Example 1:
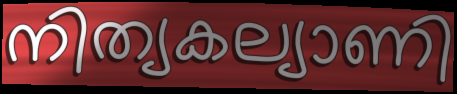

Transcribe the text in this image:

നിത്യകല്യാണി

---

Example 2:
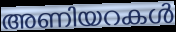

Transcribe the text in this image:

അണിയറകൾ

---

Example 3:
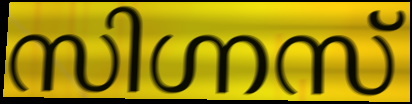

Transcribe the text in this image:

സിഗ്നസ്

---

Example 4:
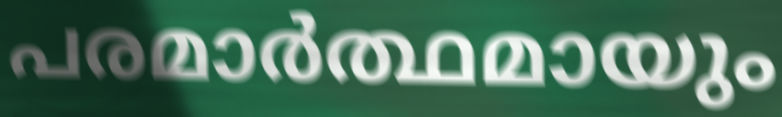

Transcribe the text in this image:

പരമാർത്ഥമായും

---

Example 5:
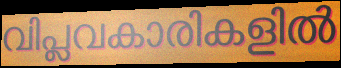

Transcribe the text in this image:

വിപ്ലവകാരികളിൽ